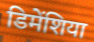
डिमेंशिया